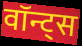
वॉन्ट्स